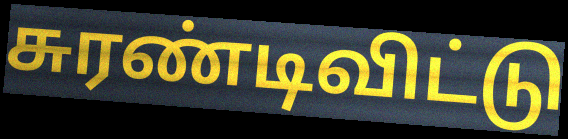
சுரண்டிவிட்டு